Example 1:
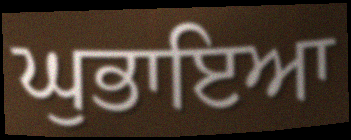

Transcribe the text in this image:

ਘੁਭਾਇਆ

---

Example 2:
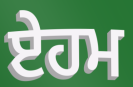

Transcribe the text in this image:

ਏਹਮ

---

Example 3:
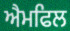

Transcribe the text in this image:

ਐਮਫਿਲ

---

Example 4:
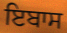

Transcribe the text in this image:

ਇਬਾਸ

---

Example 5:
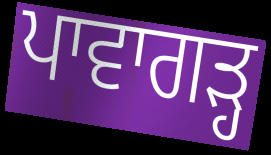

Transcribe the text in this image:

ਪਾਵਾਗੜ੍ਹ